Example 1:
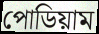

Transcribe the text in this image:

পোডিয়াম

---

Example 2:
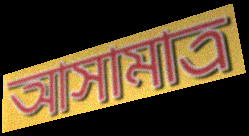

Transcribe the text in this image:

আসামাত্র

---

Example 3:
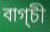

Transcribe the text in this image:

বাগ্চী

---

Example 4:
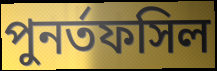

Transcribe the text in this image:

পুনর্তফসিল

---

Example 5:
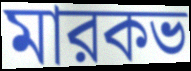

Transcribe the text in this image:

মারকভ